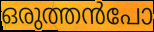
ഒരുത്തൻപോ